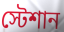
স্টেশান